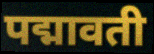
पद्मावती